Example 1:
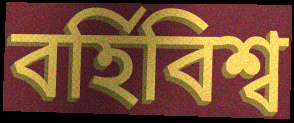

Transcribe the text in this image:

বর্হিবিশ্ব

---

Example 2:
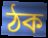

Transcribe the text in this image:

ঠক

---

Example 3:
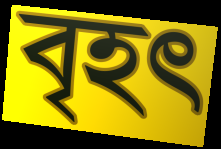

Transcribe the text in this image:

বৃহৎ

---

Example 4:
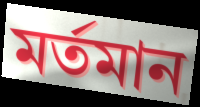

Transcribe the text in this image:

মর্তমান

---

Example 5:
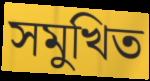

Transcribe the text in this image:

সমুখিত